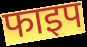
फाइप